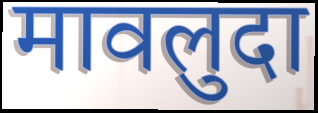
मावलुदा